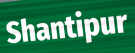
Shantipur